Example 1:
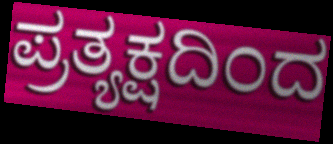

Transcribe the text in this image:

ಪ್ರತ್ಯಕ್ಷದಿಂದ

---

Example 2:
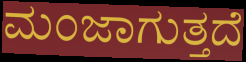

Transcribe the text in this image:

ಮಂಜಾಗುತ್ತದೆ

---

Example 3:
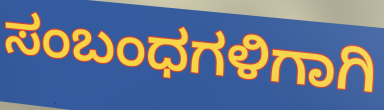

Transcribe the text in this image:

ಸಂಬಂಧಗಳಿಗಾಗಿ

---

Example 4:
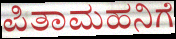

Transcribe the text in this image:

ಪಿತಾಮಹನಿಗೆ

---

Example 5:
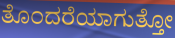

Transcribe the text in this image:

ತೊಂದರೆಯಾಗುತ್ತೋ